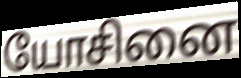
யோசினை